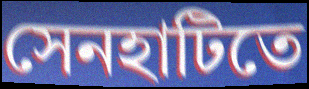
সেনহাটিতে